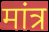
मांत्र